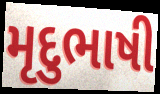
મૃદુભાષી